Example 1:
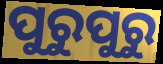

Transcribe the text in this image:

ପୁରୁପୁରୁ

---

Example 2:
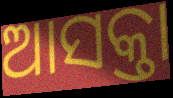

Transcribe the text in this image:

ଆସକ୍ତା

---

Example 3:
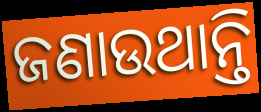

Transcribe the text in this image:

ଜଣାଉଥାନ୍ତି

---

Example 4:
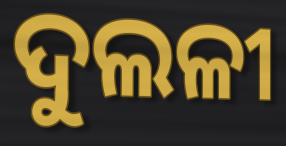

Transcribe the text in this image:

ଦୁଲଳୀ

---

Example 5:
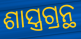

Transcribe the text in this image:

ଶାସ୍ତ୍ରଗ୍ରନ୍ଥ